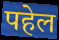
पहेल